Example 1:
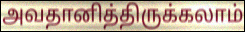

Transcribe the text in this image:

அவதானித்திருக்கலாம்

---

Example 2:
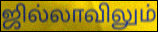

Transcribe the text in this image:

ஜில்லாவிலும்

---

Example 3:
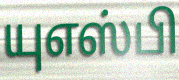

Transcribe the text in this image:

யுஎஸ்பி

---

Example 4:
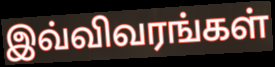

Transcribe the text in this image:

இவ்விவரங்கள்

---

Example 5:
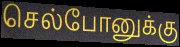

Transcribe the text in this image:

செல்போனுக்கு